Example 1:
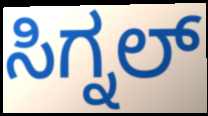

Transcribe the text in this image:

ಸಿಗ್ನಲ್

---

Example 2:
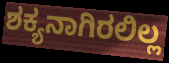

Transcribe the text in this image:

ಶಕ್ಯನಾಗಿರಲಿಲ್ಲ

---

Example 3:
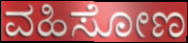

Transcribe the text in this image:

ವಹಿಸೋಣ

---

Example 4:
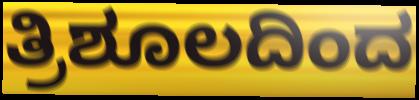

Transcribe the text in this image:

ತ್ರಿಶೂಲದಿಂದ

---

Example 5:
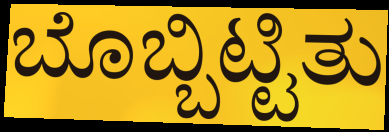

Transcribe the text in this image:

ಬೊಬ್ಬಿಟ್ಟಿತು